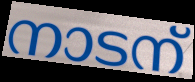
നാടന്